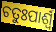
ଚତୁଃପାର୍ଶ୍ବ